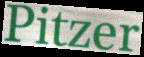
Pitzer